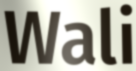
Wali